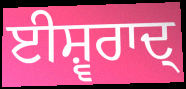
ਈਸ਼੍ਵਰਾਦ੍